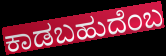
ಕಾಡಬಹುದೆಂಬ